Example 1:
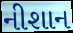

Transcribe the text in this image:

નીશાન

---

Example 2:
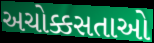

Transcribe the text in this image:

અચોક્કસતાઓ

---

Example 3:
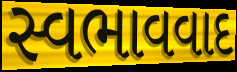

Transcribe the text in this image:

સ્વભાવવાદ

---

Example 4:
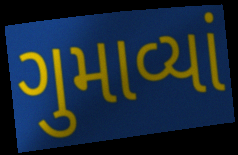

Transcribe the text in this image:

ગુમાવ્યાં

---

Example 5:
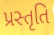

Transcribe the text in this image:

પ્રસ્તૃતિ